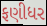
ફણીધર